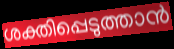
ശക്തിപ്പെടുത്താൻ